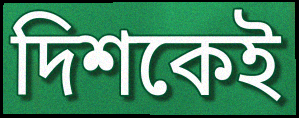
দিশকেই